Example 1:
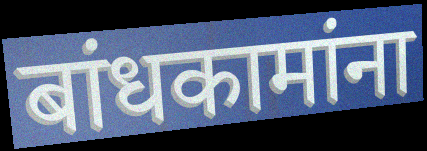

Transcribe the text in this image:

बांधकामांना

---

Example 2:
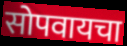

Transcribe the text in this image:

सोपवायचा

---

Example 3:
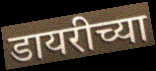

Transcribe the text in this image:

डायरीच्या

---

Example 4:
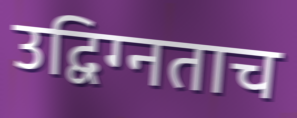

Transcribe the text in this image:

उद्विग्नताच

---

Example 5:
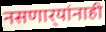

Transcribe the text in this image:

नसणार्‍यांनाही